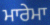
ਮਾਰੇਮਾ